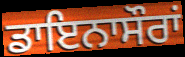
ਡਾਇਨਾਸੌਰਾਂ